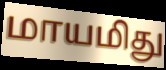
மாயமிது